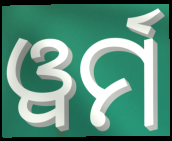
ୱର୍ମ